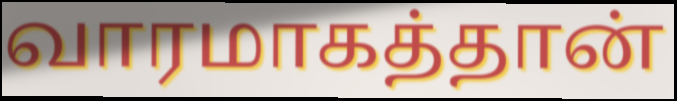
வாரமாகத்தான்